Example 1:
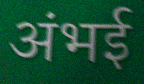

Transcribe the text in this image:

अंभई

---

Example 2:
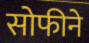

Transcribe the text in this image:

सोफीने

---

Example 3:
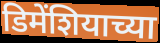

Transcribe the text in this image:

डिमेंशियाच्या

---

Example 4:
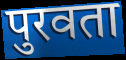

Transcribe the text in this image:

पुरवता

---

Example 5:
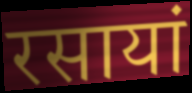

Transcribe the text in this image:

रसायां